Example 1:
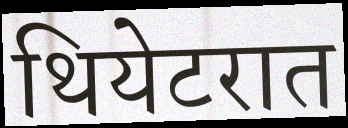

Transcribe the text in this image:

थियेटरात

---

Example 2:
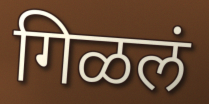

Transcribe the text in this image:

गिळलं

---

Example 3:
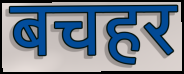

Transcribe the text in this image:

बचहर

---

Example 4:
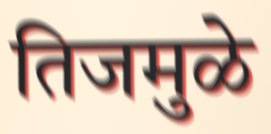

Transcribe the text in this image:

तिजमुळे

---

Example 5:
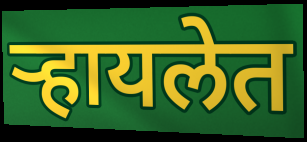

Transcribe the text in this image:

ऱ्हायलेत